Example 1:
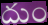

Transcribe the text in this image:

దుం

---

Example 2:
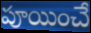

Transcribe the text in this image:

పూయించే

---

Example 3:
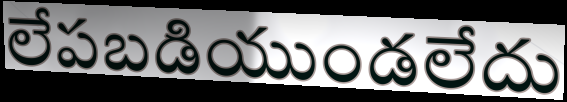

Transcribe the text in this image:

లేపబడియుండలేదు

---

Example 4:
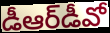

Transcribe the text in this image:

డీఆర్‌డీవో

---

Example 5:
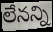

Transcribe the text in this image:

లేనన్ని